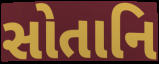
સોતાનિ